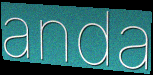
anda